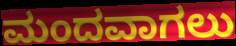
ಮಂದವಾಗಲು